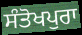
ਸੰਤੋਖਪੁਰਾ